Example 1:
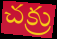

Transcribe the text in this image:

చక్రు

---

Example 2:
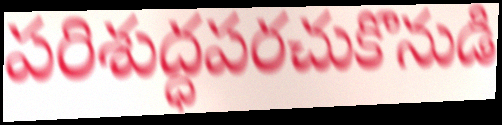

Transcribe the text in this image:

పరిశుద్ధపరచుకొనుడి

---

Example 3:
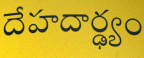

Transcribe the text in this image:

దేహదార్ఢ్యం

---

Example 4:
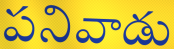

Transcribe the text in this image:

పనివాడు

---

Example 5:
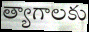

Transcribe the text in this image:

త్యాగాలకు